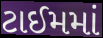
ટાઈમમાં